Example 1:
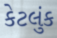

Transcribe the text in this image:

કેટલુંક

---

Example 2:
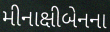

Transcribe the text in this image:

મીનાક્ષીબેનના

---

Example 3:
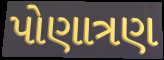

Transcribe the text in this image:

પોણાત્રણ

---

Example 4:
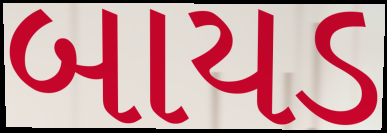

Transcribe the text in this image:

બાયડ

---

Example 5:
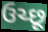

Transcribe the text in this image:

ઉચ્છૂ